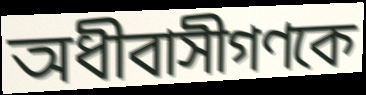
অধীবাসীগণকে